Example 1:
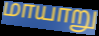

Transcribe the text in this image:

மாயாறு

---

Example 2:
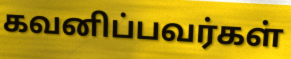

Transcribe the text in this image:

கவனிப்பவர்கள்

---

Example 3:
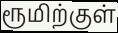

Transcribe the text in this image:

ரூமிற்குள்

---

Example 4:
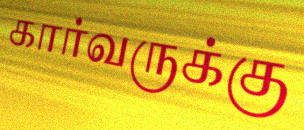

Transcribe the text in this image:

கார்வருக்கு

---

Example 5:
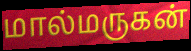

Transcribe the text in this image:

மால்மருகன்